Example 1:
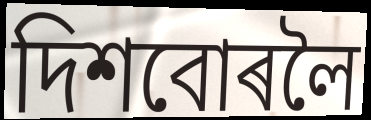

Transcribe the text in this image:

দিশবোৰলৈ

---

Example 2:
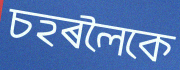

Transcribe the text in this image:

চহৰলৈকে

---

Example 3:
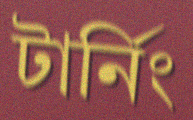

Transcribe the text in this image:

টাৰ্নিং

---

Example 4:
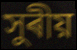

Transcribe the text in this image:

সুৰীয়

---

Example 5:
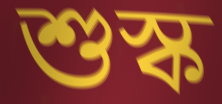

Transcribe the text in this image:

শুস্ক